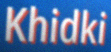
Khidki